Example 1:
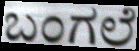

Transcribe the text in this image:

ಬಂಗಲೆ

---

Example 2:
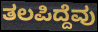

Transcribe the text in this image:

ತಲಪಿದ್ದೆವು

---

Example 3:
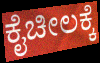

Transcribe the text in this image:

ಕೈಚೀಲಕ್ಕೆ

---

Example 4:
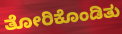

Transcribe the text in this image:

ತೋರಿಕೊಂಡಿತು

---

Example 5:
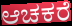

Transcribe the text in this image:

ಆಚಕರೆ